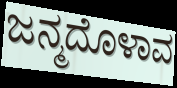
ಜನ್ಮದೊಳಾವ